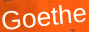
Goethe